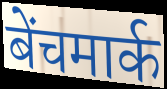
बेंचमार्क